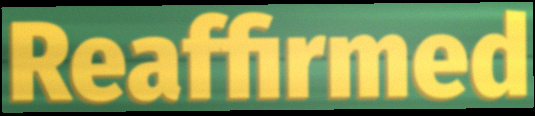
Reaffirmed